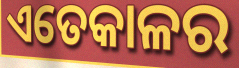
ଏତେକାଳର